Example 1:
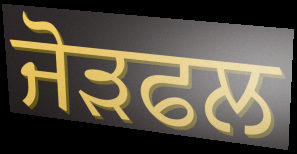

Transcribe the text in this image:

ਜੋੜਫਲ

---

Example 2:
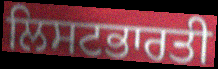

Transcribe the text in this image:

ਲਿਸਟਭਾਰਤੀ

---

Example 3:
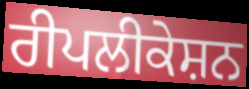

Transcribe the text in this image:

ਰੀਪਲੀਕੇਸ਼ਨ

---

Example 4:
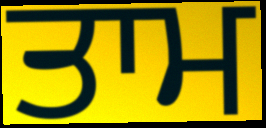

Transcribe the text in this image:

ਤਾਮ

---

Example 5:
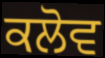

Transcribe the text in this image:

ਕਲੋਵ